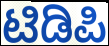
ಟಿಡಿಪಿ